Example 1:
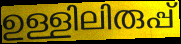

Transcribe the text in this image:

ഉള്ളിലിരുപ്പ്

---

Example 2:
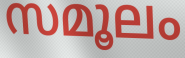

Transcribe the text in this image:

സമൂലം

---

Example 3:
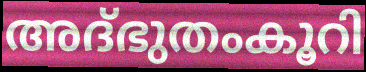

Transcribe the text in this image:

അദ്ഭുതംകൂറി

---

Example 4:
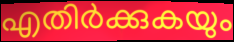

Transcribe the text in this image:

എതിർക്കുകയും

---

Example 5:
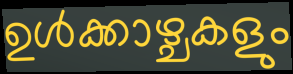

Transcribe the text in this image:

ഉൾക്കാഴ്ചകളും